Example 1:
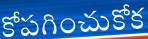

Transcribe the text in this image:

కోపగించుకోక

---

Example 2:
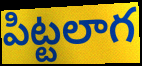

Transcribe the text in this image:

పిట్టలాగ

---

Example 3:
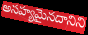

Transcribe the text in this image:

అసహ్యమైనదానిని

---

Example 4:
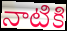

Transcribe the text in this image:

నాటికి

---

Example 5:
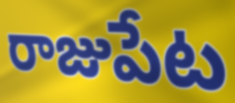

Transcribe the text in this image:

రాజుపేట